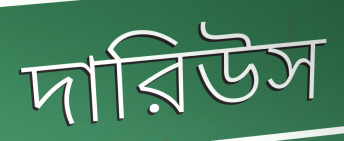
দারিউস